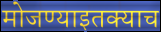
मोजण्याइतक्याच